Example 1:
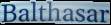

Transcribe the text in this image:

Balthasar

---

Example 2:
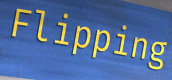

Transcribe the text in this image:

Flipping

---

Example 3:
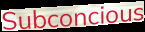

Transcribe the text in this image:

Subconcious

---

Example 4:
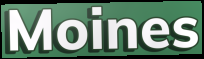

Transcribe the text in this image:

Moines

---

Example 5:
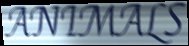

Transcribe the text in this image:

ANIMALS